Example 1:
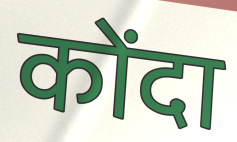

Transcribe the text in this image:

कोंदा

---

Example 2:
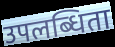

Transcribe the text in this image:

उपलब्धिता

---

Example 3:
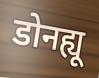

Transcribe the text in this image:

डोनह्यू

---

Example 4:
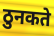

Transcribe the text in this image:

ठुनकते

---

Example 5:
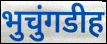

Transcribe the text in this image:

भुचुंगडीह